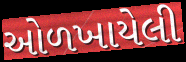
ઓળખાયેલી